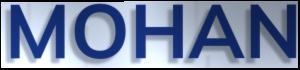
MOHAN